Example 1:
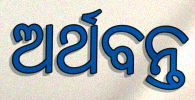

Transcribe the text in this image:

ଅର୍ଥବନ୍ତ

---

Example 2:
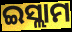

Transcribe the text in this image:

ଇସ୍ଲାମ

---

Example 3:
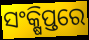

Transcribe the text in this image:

ସଂକ୍ଷିପ୍ତରେ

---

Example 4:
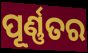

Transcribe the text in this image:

ପୂର୍ଣ୍ଣତର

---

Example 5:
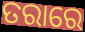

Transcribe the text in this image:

ତରାରେ